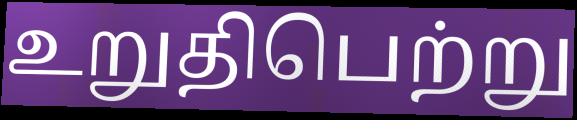
உறுதிபெற்று